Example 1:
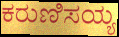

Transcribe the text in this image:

ಕರುಣಿಸಯ್ಯ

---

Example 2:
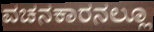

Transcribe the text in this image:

ವಚನಕಾರನಲ್ಲೂ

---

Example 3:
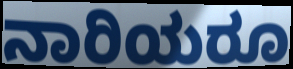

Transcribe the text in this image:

ನಾರಿಯರೂ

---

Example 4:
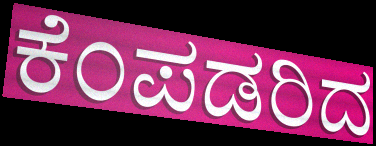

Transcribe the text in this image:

ಕೆಂಪಡರಿದ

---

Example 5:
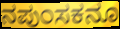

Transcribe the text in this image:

ನಪುಂಸಕನೂ